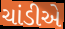
ચાંડીએ